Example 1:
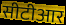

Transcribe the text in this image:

सीटीआर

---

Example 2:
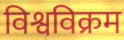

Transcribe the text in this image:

विश्वविक्रम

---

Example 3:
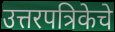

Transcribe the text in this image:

उत्तरपत्रिकेचे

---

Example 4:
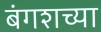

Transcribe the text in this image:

बंगशच्या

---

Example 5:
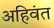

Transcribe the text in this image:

अहिवंत